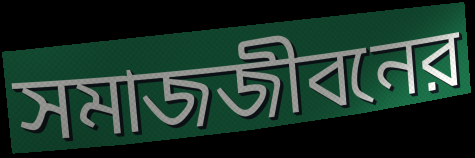
সমাজজীবনের